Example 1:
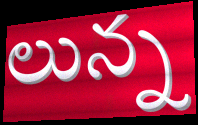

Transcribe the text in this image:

లున్న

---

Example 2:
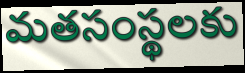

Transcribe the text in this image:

మతసంస్థలకు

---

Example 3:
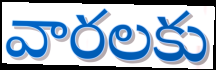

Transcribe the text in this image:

వారలకు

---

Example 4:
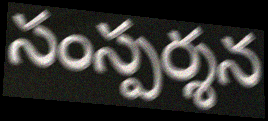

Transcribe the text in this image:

సంస్పర్శన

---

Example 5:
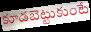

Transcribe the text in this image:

కూడబెట్టుకుంటే